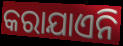
କରାଯାଏନି